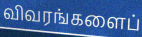
விவரங்களைப்